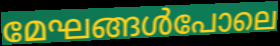
മേഘങ്ങൾപോലെ